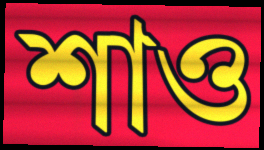
শাও